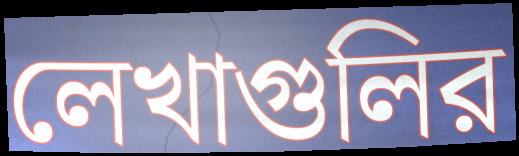
লেখাগুলির